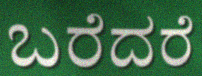
ಬರೆದರೆ